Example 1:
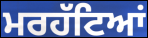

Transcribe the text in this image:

ਮਰਹੱਟਿਆਂ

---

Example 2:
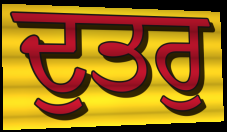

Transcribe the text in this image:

ਦੁਤਰੁ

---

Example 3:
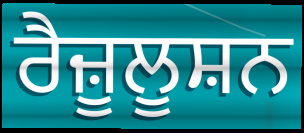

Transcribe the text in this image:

ਰੈਜ਼ੂਲੂਸ਼ਨ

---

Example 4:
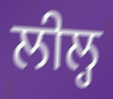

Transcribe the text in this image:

ਲੀਲ੍ਹ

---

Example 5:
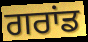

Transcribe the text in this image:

ਗਰਾਂਡ